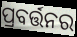
ପ୍ରବର୍ତ୍ତନର